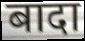
बादा